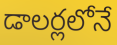
డాలర్లలోనే